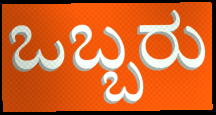
ಒಬ್ಬರು